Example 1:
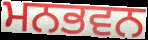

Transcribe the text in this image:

ਮਨਭਵਨ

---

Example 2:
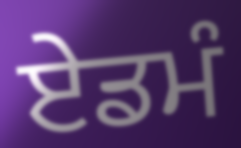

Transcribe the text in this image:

ਏਡਮੰ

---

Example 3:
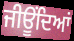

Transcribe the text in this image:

ਜੀਊਂਦਿਆਂ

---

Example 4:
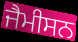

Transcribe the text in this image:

ਜੈਮੀਸਨ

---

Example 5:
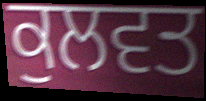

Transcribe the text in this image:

ਕੁਲਵਤ